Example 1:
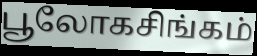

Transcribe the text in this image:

பூலோகசிங்கம்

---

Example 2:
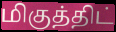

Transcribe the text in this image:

மிகுத்திட்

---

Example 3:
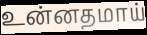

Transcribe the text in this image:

உன்னதமாய்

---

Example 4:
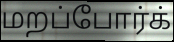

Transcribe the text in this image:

மறப்போர்க்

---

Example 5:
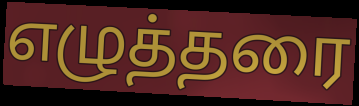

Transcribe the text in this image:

எழுத்தரை